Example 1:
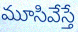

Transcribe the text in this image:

మూసివేస్తే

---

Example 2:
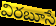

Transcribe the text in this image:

విరబూసే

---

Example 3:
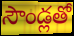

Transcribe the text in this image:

సౌండ్లతో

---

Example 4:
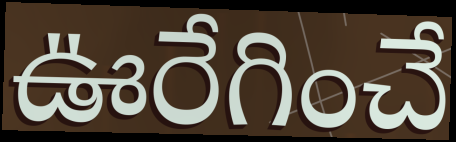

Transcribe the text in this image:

ఊరేగించే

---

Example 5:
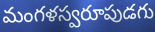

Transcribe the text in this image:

మంగళస్వరూపుడగు